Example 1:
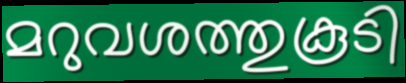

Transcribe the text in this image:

മറുവശത്തുകൂടി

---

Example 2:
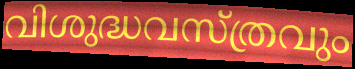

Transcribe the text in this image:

വിശുദ്ധവസ്ത്രവും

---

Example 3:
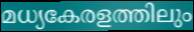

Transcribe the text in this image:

മധ്യകേരളത്തിലും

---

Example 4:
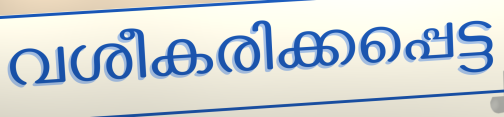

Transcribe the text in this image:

വശീകരിക്കപ്പെട്ട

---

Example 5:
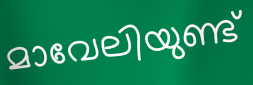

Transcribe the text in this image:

മാവേലിയുണ്ട്